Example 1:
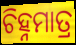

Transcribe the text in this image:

ଚିହ୍ନମାତ୍ର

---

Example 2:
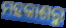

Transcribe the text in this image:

ମହକାଶରୁ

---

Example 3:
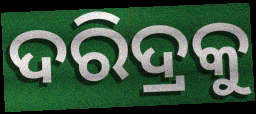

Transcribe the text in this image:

ଦରିଦ୍ରକୁ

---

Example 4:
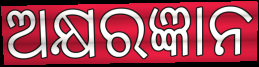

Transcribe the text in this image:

ଅକ୍ଷରଜ୍ଞାନ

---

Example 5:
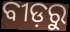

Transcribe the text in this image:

ବୀଡ଼ରୁ